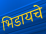
भिडायचे